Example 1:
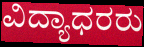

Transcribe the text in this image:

ವಿದ್ಯಾಧರರು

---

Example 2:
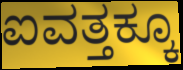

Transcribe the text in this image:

ಐವತ್ತಕ್ಕೂ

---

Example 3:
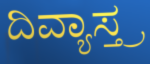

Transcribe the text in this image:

ದಿವ್ಯಾಸ್ತ್ರ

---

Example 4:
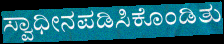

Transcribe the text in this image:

ಸ್ವಾಧೀನಪಡಿಸಿಕೊಂಡಿತು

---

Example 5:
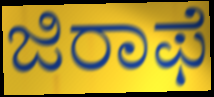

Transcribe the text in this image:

ಜಿರಾಫೆ